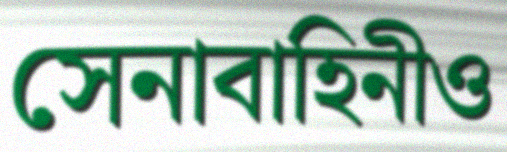
সেনাবাহিনীও